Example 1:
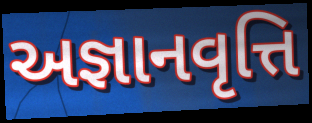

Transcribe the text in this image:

અજ્ઞાનવૃત્તિ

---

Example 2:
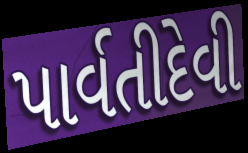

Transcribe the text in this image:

પાર્વતીદેવી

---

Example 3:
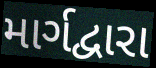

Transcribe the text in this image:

માર્ગદ્વારા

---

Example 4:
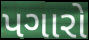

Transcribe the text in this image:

પગારો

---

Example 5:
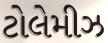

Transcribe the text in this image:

ટોલેમીઝ